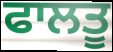
ਫਾਲਤੂ